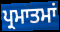
ਪ੍ਰਮਾਤਮਾਂ